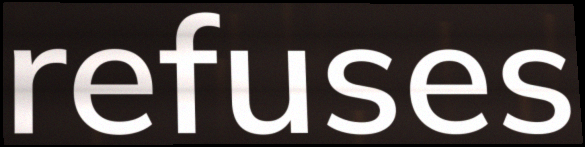
refuses